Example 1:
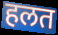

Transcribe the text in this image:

हलत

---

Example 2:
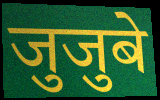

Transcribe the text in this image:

जुजुबे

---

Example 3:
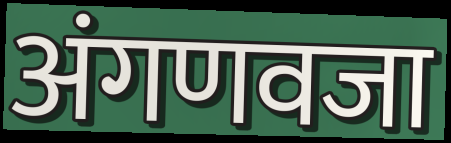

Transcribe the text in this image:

अंगणवजा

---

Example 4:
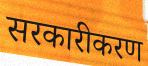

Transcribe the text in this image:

सरकारीकरण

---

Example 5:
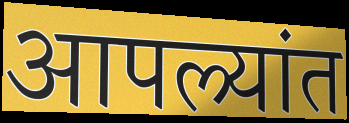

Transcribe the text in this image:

आपल्यांत